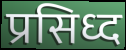
प्रसिध्द